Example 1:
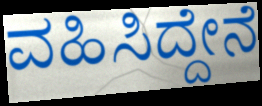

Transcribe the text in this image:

ವಹಿಸಿದ್ದೇನೆ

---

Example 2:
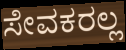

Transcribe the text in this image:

ಸೇವಕರಲ್ಲ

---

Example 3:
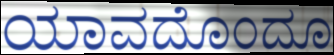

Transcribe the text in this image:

ಯಾವದೊಂದೂ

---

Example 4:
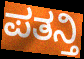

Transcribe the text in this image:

ಪತನ್ತಿ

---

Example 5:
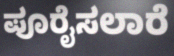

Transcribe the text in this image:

ಪೂರೈಸಲಾರೆ